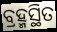
ବ୍ରହ୍ମସ୍ଥିତ